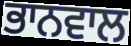
ਭਾਨਵਾਲ